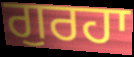
ਗੁਰਹਾ